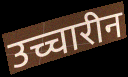
उच्चारीन